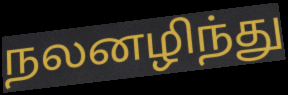
நலனழிந்து